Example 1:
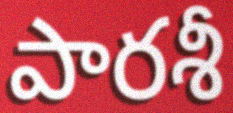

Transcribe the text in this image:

పారశీ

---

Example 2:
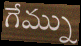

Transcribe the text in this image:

గేమ్ను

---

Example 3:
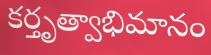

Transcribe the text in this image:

కర్తృత్వాభిమానం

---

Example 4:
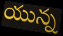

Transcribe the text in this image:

యున్న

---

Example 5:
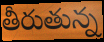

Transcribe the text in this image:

తీరుతున్న